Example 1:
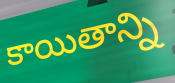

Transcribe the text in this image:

కాయితాన్ని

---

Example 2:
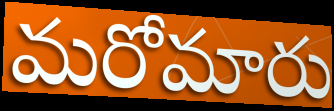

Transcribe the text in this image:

మరోమారు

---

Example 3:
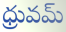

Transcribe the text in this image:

ధ్రువమ్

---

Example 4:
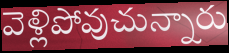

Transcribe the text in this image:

వెళ్లిపోవుచున్నారు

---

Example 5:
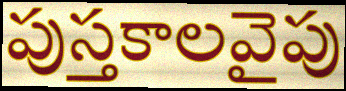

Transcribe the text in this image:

పుస్తకాలవైపు